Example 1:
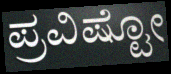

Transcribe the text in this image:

ಪ್ರವಿಷ್ಟೋ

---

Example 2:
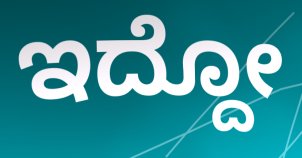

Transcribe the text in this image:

ಇದ್ದೋ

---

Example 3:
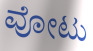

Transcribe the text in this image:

ವೋಟು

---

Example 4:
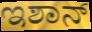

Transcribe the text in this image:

ಇಶಾನ್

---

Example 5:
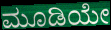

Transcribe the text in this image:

ಮೂಡಿಯೇ